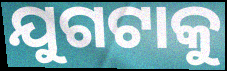
ଯୁଗଟାକୁ